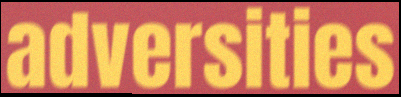
adversities